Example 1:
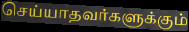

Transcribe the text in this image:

செய்யாதவர்களுக்கும்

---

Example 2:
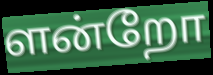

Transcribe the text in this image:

ளன்றோ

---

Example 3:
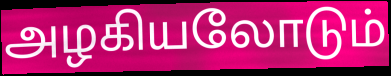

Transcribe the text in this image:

அழகியலோடும்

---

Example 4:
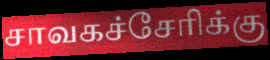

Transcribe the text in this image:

சாவகச்சேரிக்கு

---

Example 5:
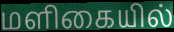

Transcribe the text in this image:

மளிகையில்